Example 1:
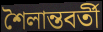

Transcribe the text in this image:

শৈলান্তবর্তী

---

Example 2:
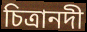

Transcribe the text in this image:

চিত্রানদী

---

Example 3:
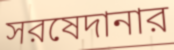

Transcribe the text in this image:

সরষেদানার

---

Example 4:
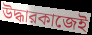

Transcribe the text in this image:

উদ্ধারকাজেই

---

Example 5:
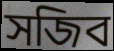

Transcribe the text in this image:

সজিব